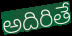
అదిరితే